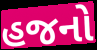
હજનો